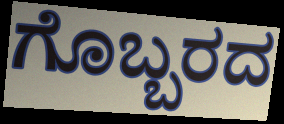
ಗೊಬ್ಬರದ